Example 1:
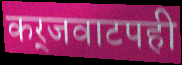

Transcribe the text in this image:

कर्जवाटपही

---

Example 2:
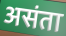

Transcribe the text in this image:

असंता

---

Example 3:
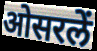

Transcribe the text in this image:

ओसरलें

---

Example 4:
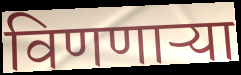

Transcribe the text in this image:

विणणाऱ्या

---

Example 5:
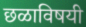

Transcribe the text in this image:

छळाविषयी